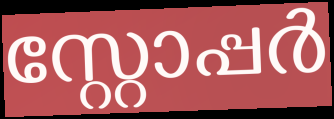
സ്റ്റോപ്പർ